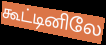
கூட்டினிலே